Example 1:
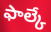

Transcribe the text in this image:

ఫాల్కే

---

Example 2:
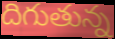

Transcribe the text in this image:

దిగుతున్న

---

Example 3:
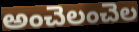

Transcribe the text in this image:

అంచెలంచెల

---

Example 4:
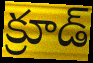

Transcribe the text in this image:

క్రూడ్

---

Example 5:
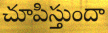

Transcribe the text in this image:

చూపిస్తుందా